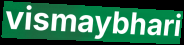
vismaybhari